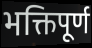
भक्तिपूर्ण